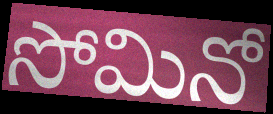
సోమినో